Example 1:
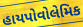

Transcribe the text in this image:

હાયપોવોલેમિક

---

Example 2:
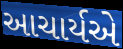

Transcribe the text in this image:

આચાર્યએ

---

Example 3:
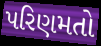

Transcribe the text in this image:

પરિણમતો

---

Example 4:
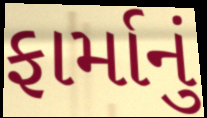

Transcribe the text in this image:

ફાર્માનું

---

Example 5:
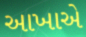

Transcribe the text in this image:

આખાએ